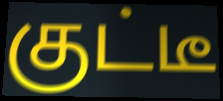
குட்டீ